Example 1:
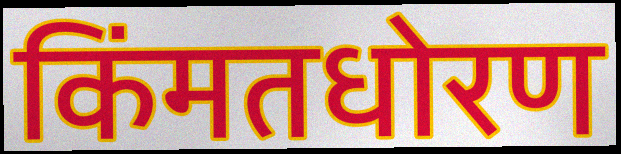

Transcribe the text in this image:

किंमतधोरण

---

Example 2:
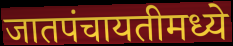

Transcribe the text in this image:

जातपंचायतीमध्ये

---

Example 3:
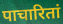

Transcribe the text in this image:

पाचारितां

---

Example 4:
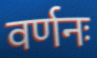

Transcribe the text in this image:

वर्णनः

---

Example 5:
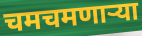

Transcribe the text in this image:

चमचमणाऱ्या